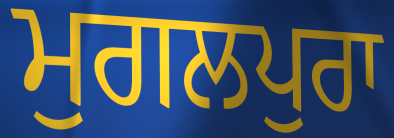
ਮੁਗਲਪੁਰਾ